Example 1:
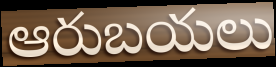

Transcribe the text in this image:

ఆరుబయలు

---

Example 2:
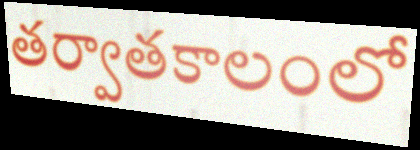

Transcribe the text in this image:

తర్వాతకాలంలో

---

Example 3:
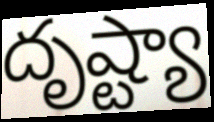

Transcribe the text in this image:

దృష్ట్యా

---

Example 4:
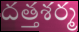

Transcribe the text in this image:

దత్తశర్మ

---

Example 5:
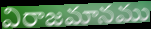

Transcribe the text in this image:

విరాజమానము